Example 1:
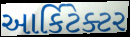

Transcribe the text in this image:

આર્કિટેક્ટર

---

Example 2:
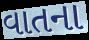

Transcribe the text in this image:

વાતના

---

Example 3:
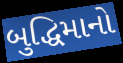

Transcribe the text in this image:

બુદ્ધિમાનો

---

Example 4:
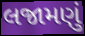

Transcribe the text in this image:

લજામણું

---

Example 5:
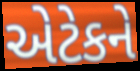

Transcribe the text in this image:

એટેકને